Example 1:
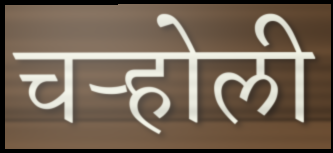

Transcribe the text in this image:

चऱ्होली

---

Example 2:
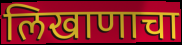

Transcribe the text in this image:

लिखाणाचा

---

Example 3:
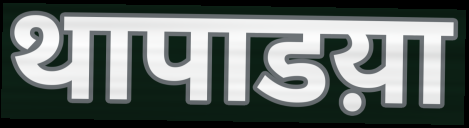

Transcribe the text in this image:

थापाडय़ा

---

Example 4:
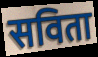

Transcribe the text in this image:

सविता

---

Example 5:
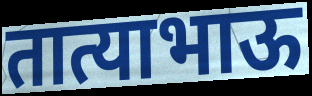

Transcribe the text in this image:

तात्याभाऊ